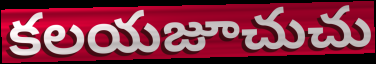
కలయజూచుచు